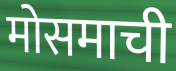
मोसमाची